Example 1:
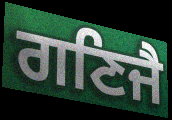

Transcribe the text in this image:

ਗਣਿਜੈ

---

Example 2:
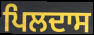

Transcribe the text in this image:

ਪਿਲਦਾਸ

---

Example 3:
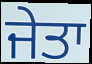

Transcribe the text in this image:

ਜੇਤਾ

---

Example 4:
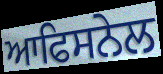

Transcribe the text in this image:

ਆਫਿਸਨੇਲ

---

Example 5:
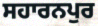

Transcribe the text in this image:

ਸਹਾਰਨਪੁਰ